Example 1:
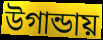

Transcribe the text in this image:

উগান্ডায়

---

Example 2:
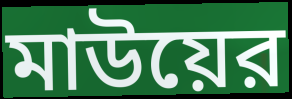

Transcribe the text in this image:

মাউয়ের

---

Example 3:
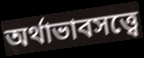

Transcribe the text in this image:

অর্থাভাবসত্ত্বে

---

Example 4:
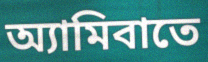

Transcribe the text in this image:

অ্যামিবাতে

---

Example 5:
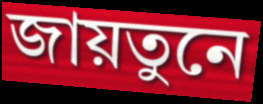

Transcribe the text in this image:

জায়তুনে